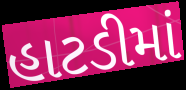
હાટડીમાં